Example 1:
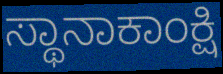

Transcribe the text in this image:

ಸ್ಥಾನಾಕಾಂಕ್ಷಿ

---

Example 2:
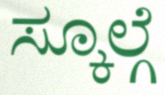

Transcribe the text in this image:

ಸ್ಕೂಲ್ಗೆ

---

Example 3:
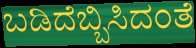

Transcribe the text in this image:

ಬಡಿದೆಬ್ಬಿಸಿದಂತೆ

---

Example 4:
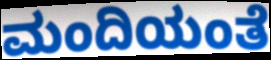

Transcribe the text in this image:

ಮಂದಿಯಂತೆ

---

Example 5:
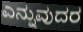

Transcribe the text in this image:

ಎನ್ನುವುದರ